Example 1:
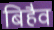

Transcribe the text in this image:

बिहैव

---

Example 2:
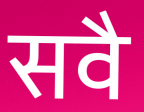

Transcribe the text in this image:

सवै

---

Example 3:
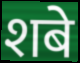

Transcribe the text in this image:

शबे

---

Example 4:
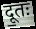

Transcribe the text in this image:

दू॒तः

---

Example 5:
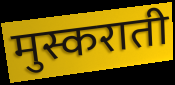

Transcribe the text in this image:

मुस्कराती